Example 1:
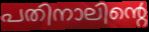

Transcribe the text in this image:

പതിനാലിന്റെ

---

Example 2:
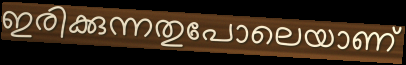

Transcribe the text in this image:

ഇരിക്കുന്നതുപോലെയാണ്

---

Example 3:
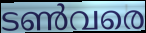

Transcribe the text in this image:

ടൺവരെ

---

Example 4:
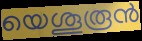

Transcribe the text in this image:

യെശൂരൂൻ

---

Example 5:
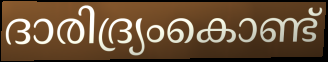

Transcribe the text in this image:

ദാരിദ്ര്യംകൊണ്ട്